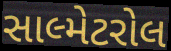
સાલ્મેટરોલ